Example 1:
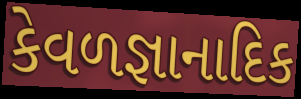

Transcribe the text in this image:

કેવળજ્ઞાનાદિક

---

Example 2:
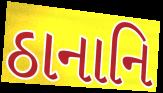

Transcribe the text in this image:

ઠાનાનિ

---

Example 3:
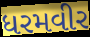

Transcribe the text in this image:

ધરમવીર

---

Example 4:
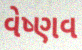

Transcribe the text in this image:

વેષ્ણવ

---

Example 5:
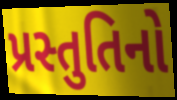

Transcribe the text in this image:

પ્રસ્તુતિનો